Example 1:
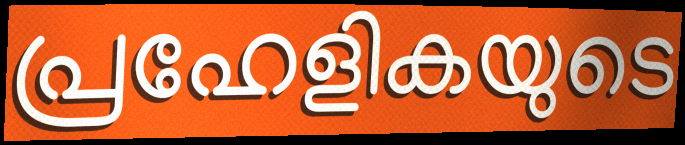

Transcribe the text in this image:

പ്രഹേളികയുടെ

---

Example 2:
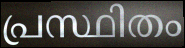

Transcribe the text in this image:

പ്രസ്ഥിതം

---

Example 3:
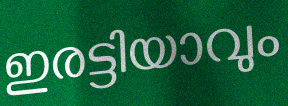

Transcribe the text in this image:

ഇരട്ടിയാവും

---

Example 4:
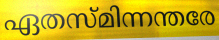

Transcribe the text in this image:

ഏതസ്മിന്നന്തരേ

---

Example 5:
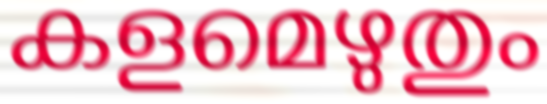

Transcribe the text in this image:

കളമെഴുതും